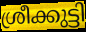
ശ്രീക്കുട്ടി